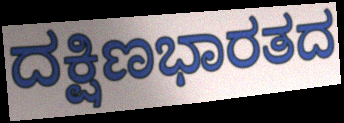
ದಕ್ಷಿಣಭಾರತದ